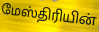
மேஸ்திரியின்